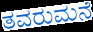
ತವರುಮನೆ